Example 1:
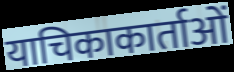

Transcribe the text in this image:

याचिकाकार्ताओं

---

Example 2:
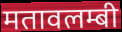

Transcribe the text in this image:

मतावलम्बी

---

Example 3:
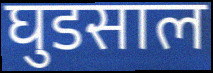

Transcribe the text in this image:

घुडसाल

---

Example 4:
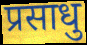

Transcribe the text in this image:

प्रसाधु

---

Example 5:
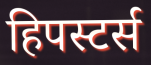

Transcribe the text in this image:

हिपस्टर्स